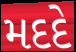
મદદે